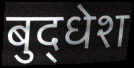
बुद्धेश